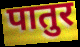
पातुर